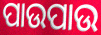
ପାଉପାଉ